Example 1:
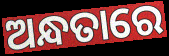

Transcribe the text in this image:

ଅନ୍ଧତାରେ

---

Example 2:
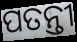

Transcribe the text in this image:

ପତନ୍ତୀ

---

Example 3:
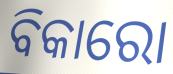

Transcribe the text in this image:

ବିକାରୋ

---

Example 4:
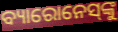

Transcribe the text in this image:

ବ୍ୟାରୋନେସ୍‌ଙ୍କୁ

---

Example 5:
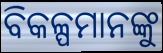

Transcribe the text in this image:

ବିକଳ୍ପମାନଙ୍କୁ